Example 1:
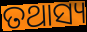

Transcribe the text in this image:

ତଥାସ୍ୟ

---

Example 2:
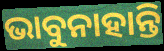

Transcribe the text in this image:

ଭାବୁନାହାନ୍ତି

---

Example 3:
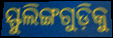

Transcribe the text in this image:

ସ୍ଫୁଲିଙ୍ଗଗୁଡ଼ିକୁ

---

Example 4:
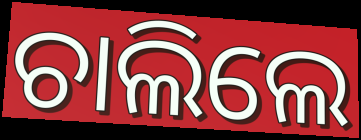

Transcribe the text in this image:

ଚାଲିଲେ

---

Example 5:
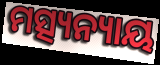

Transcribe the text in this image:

ମତ୍ସ୍ୟନ୍ୟାୟ